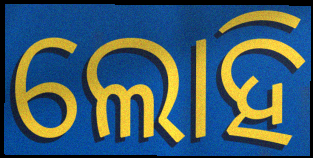
ଲୋହି